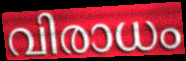
വിരാധം